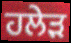
ਹਲੇੜ